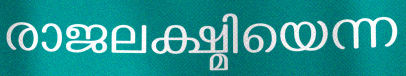
രാജലക്ഷ്മിയെന്ന